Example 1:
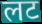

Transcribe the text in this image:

लट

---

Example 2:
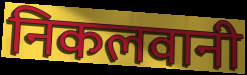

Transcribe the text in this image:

निकलवानी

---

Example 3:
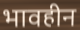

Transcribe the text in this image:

भावहीन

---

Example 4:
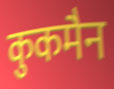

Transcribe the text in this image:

कुकमैन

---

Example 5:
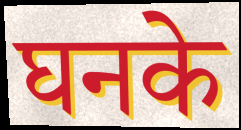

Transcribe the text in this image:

घनके